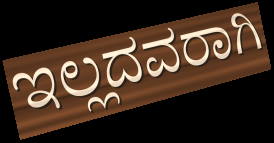
ಇಲ್ಲದವರಾಗಿ